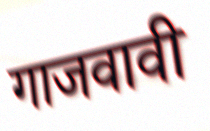
गाजवावी